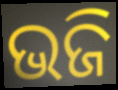
ଭଜି